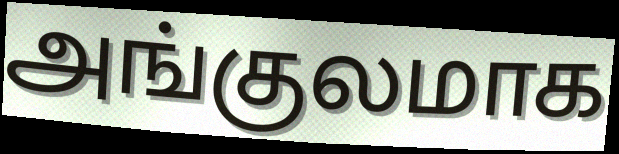
அங்குலமாக